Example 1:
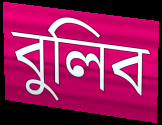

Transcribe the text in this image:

বুলিব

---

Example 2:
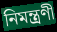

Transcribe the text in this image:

নিমন্ত্ৰণী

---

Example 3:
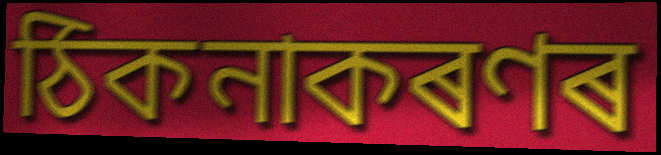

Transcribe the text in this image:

ঠিকনাকৰণৰ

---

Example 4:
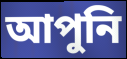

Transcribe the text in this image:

আপুনি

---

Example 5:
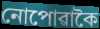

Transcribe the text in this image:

নোপোৱাকৈ